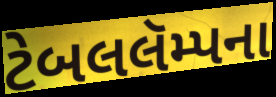
ટેબલલૅમ્પના